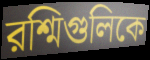
রশ্মিগুলিকে